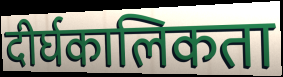
दीर्घकालिकता